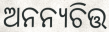
ଅନନ୍ୟଚିତ୍ତ